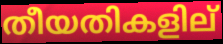
തീയതികളില്